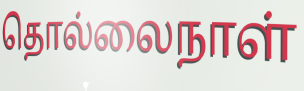
தொல்லைநாள்